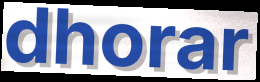
dhorar